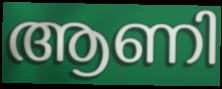
ആണി